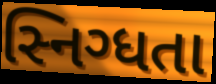
સ્નિગ્ધતા